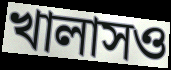
খালাসও